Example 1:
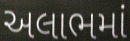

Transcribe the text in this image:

અલાભમાં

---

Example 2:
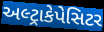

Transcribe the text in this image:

અલ્ટ્રાકેપેસિટર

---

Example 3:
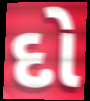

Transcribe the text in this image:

દો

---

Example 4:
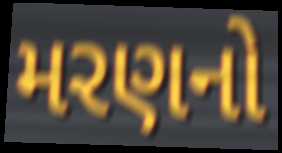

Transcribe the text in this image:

મરણનો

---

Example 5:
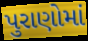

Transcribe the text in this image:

પુરાણોમાં